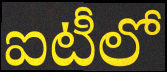
ఐటీలో